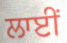
ਲਾਈਂ